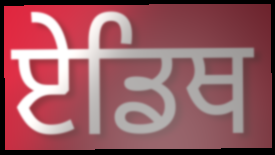
ਏਡਿਥ